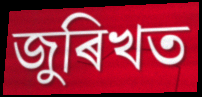
জুৰিখত